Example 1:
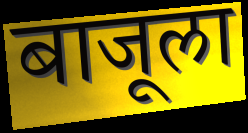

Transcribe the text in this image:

बाजूला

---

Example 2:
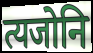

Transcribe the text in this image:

त्यजोनि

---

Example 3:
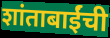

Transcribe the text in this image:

शांताबाईंची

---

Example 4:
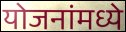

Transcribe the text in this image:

योजनांमध्ये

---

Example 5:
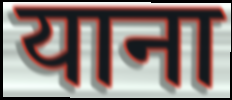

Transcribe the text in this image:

याना